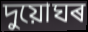
দুয়োঘৰ